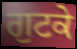
ਗੁਟਕੇ